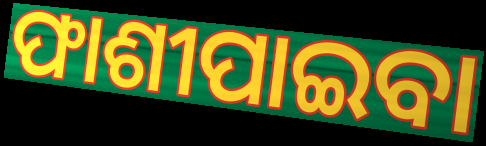
ଫାଶୀପାଇବା